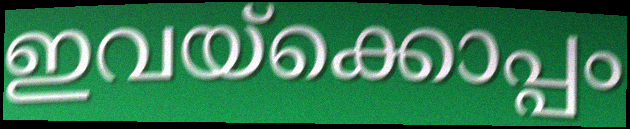
ഇവയ്ക്കൊപ്പം